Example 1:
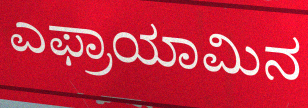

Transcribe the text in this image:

ಎಫ್ರಾಯಾಮಿನ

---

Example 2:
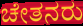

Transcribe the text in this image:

ಚೇತನರು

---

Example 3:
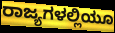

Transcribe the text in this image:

ರಾಜ್ಯಗಳಲ್ಲಿಯೂ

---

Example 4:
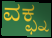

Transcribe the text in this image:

ವಕ್ಫ್ನ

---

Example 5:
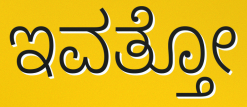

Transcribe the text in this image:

ಇವತ್ತೋ